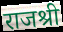
राजश्री